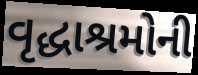
વૃદ્ધાશ્રમોની